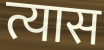
त्यास